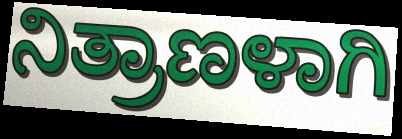
ನಿತ್ರಾಣಳಾಗಿ